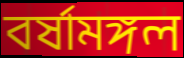
বর্ষামঙ্গল